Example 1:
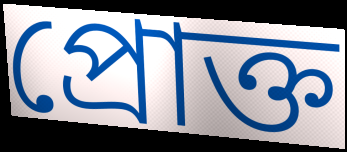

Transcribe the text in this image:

প্রোক্ত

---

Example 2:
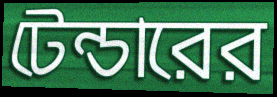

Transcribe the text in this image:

টেন্ডারের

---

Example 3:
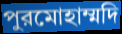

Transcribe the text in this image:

পুরমোহাম্মদি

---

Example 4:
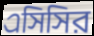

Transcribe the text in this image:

এসিসির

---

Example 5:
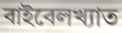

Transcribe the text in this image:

বাইবেলখ্যাত